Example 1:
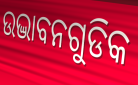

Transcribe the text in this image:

ଉଦ୍ଭାବନଗୁଡିକ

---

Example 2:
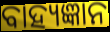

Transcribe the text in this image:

ବାହ୍ୟଜ୍ଞାନ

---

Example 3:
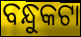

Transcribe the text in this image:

ବନ୍ଧୁକଟା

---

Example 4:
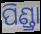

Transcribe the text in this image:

ପିଣ୍ଡ୍ରା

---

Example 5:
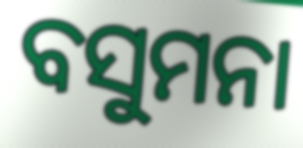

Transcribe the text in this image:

ବସୁମନା